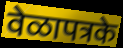
वेळापत्रके